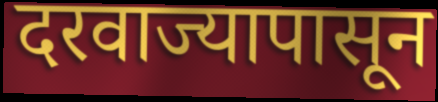
दरवाज्यापासून